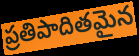
ప్రతిపాదితమైన